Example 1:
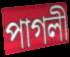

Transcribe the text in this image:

পাগলী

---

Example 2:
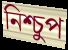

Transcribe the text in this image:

নিশ্চুপ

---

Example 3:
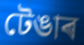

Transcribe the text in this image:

টেঙাৰ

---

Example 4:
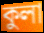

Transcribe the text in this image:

কুলা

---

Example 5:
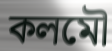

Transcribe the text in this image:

কলমৌ